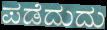
ಪಡೆದುದು